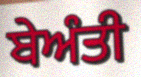
ਬੇਅੰਤੀ